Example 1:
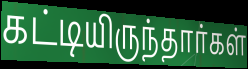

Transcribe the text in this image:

கட்டியிருந்தார்கள்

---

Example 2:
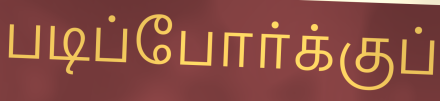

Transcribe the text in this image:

படிப்போர்க்குப்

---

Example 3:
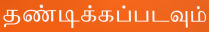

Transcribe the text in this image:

தண்டிக்கப்படவும்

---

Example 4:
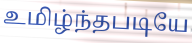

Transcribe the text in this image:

உமிழ்ந்தபடியே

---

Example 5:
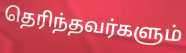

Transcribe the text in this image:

தெரிந்தவர்களும்